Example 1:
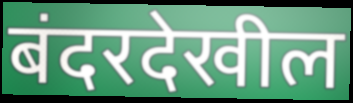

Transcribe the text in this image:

बंदरदेखील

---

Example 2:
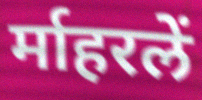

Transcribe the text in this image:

र्माहरलें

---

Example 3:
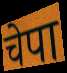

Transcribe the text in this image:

चेपा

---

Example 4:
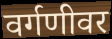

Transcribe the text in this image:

वर्गणीवर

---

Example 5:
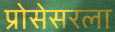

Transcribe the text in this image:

प्रोसेसरला